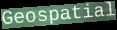
Geospatial